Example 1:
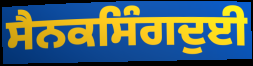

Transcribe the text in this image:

ਸੈਨਕਸਿੰਗਦੁਈ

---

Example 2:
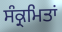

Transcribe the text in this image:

ਸੰਕ੍ਰਮਿਤਾਂ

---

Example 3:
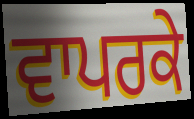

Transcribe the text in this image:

ਵਾਪਰਕੇ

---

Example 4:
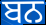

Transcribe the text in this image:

ਬਨ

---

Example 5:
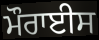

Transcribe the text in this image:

ਮੌਰਾਈਸ